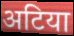
अटिया